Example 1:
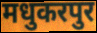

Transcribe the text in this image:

मधुकरपुर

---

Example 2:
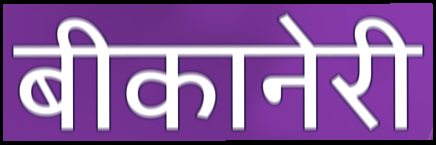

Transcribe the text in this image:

बीकानेरी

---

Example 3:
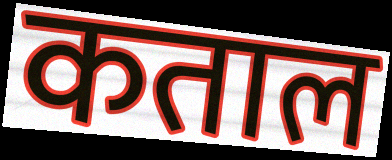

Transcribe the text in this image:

कताल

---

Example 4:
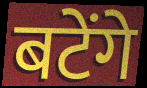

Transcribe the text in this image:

बटेंगे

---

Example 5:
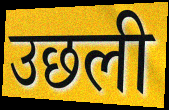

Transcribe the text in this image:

उछली